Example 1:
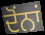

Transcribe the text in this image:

ਦੋਂਨਾਂ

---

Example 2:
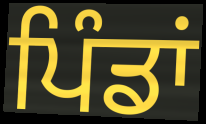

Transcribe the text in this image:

ਪਿੰਡਾਂ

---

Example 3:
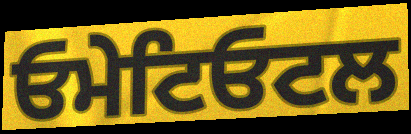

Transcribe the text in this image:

ਓਮੇਟਿਓਟਲ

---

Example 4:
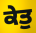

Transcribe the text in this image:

ਕੇਤੁ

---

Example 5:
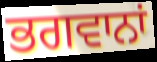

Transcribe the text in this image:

ਭਗਵਾਨਾਂ